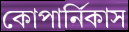
কোপার্নিকাস